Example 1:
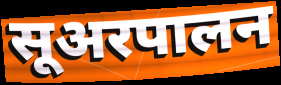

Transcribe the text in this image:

सूअरपालन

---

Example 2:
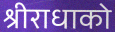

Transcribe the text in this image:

श्रीराधाको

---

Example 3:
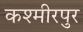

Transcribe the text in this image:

कश्मीरपुर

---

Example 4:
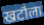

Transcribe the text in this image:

खटौला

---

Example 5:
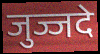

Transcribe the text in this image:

जुज्जदे